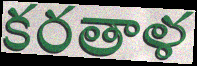
కరతాళ